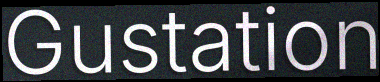
Gustation